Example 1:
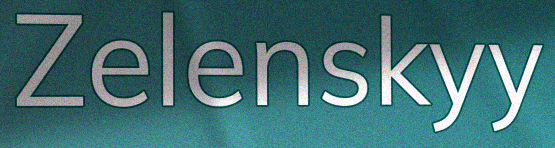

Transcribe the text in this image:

Zelenskyy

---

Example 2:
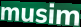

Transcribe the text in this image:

musim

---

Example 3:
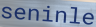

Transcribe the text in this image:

seninle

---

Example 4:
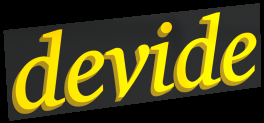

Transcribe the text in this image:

devide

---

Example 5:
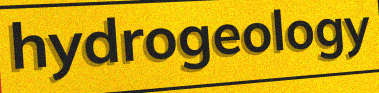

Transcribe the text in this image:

hydrogeology